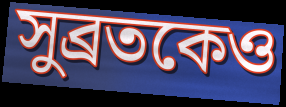
সুব্রতকেও